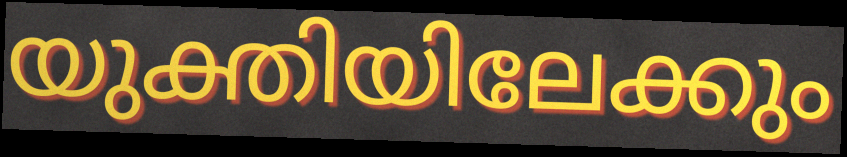
യുക്തിയിലേക്കും